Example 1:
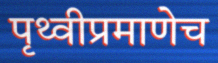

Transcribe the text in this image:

पृथ्वीप्रमाणेच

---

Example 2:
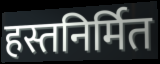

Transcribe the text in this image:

हस्तनिर्मित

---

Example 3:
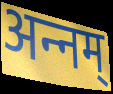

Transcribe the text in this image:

अन्नम्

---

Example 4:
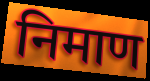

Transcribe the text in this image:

निमाण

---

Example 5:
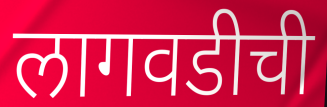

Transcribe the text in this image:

लागवडीची